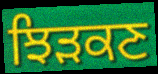
ਝਿੜਕਣ